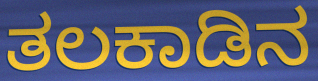
ತಲಕಾಡಿನ